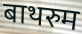
बाथरुम